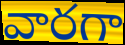
వారగా